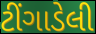
ટીંગાડેલી